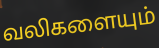
வலிகளையும்